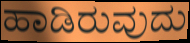
ಹಾಡಿರುವುದು